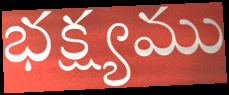
భక్ష్యము